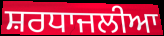
ਸ਼ਰਧਾਜਲੀਆ